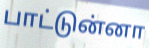
பாட்டுன்னா